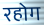
रहोग